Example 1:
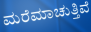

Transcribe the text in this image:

ಮರೆಮಾಚುತ್ತಿವೆ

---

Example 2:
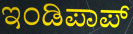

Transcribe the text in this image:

ಇಂಡಿಪಾಪ್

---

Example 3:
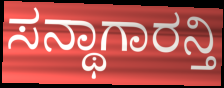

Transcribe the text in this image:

ಸನ್ಥಾಗಾರನ್ತಿ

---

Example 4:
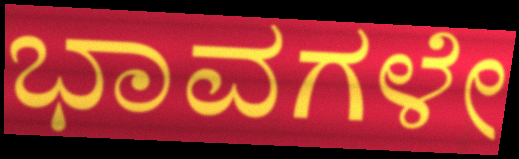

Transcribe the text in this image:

ಭಾವಗಳೇ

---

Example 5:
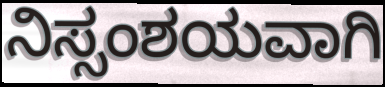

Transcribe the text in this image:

ನಿಸ್ಸಂಶಯವಾಗಿ